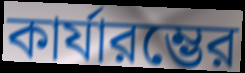
কার্যারম্ভের